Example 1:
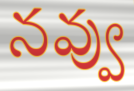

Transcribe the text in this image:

నవ్వు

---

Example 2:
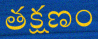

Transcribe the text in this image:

తక్షణం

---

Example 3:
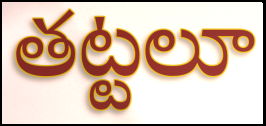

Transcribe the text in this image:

తట్టలూ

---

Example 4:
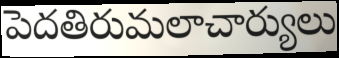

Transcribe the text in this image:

పెదతిరుమలాచార్యులు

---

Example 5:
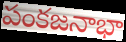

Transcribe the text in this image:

పంకజనాభా